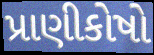
પ્રાણીકોષો